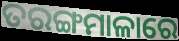
ତରଙ୍ଗମାଳାରେ